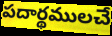
పదార్థములచే